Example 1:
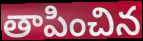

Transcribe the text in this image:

తాపించిన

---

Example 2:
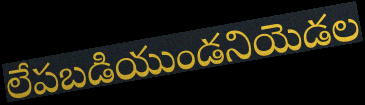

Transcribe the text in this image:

లేపబడియుండనియెడల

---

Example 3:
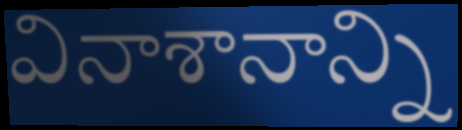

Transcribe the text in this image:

వినాశానాన్ని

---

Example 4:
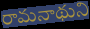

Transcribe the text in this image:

రామనాథుని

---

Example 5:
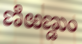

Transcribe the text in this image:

ణిఱణ్డుం